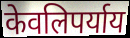
केवलिपर्याय